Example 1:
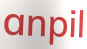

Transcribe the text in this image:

anpil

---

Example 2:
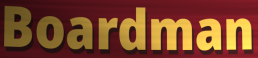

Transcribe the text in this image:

Boardman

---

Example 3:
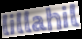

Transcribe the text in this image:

lillahil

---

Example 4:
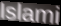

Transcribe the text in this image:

Islami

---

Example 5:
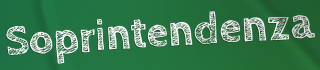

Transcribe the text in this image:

Soprintendenza